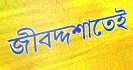
জীবদ্দশাতেই